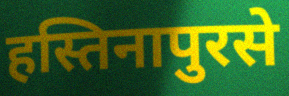
हस्तिनापुरसे